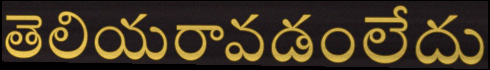
తెలియరావడంలేదు